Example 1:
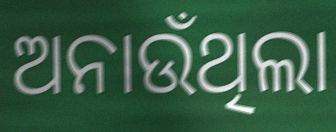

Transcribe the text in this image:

ଅନାଉଁଥିଲା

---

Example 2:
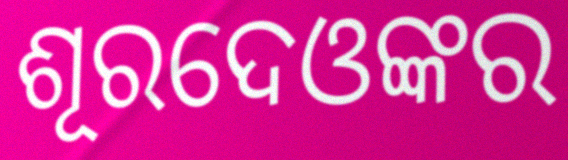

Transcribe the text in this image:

ଶୂରଦେଓଙ୍କର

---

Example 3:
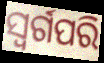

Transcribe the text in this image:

ସ୍ୱର୍ଗପରି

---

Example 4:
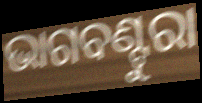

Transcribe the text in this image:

ଭାଗବଣ୍ଟୁରା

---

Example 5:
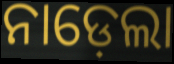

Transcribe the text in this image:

ନାଡ଼େଲା